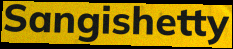
Sangishetty